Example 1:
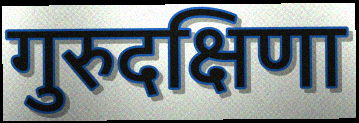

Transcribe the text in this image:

गुरुदक्षिणा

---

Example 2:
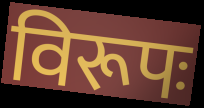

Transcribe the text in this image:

विरूपः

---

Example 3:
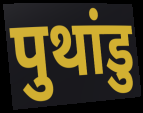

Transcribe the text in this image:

पुथांडु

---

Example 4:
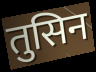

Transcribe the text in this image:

तुसिन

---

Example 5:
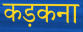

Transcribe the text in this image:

कड़कना